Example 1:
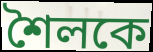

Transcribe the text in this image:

শৈলকে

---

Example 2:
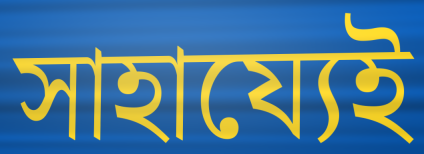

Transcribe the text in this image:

সাহায্যেই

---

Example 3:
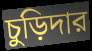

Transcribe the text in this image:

চুড়িদার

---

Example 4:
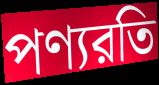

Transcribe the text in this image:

পণ্যরতি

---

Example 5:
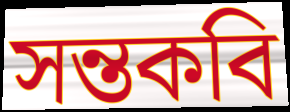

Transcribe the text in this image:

সন্তকবি